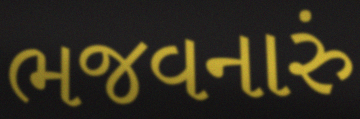
ભજવનારું